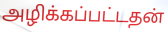
அழிக்கப்பட்டதன்